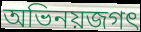
অভিনয়জগৎ